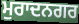
ਮੁਰਾਦਨਗਰ